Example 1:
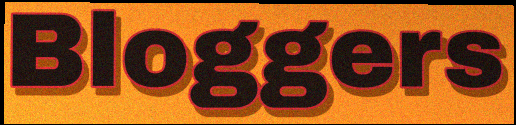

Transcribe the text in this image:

Bloggers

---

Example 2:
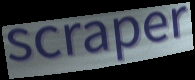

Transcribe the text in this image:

scraper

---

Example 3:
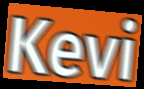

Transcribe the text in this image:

Kevi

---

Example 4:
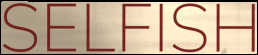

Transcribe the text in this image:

SELFISH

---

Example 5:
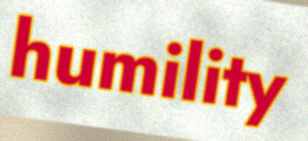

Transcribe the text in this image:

humility